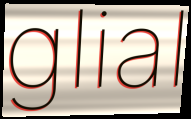
glial